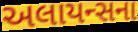
અલાયન્સના